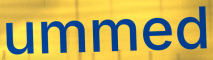
ummed